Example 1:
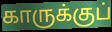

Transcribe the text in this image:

காருக்குப்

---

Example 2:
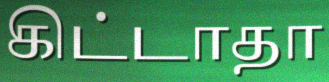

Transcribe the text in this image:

கிட்டாதா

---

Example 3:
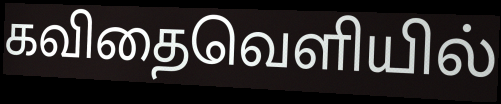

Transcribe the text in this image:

கவிதைவெளியில்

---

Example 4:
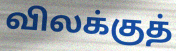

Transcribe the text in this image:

விலக்குத்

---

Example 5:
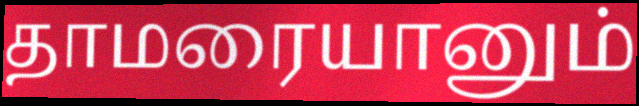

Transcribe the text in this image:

தாமரையானும்